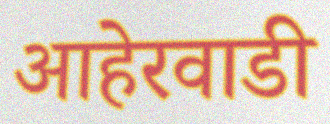
आहेरवाडी